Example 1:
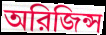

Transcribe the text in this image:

অরিজিন্স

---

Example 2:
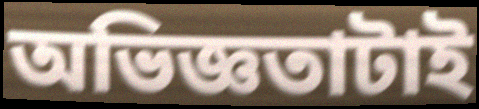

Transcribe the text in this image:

অভিজ্ঞতাটাই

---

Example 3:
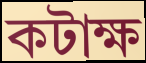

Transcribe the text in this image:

কটাক্ষ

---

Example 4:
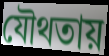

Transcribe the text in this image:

যৌথতায়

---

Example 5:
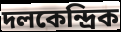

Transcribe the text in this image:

দলকেন্দ্রিক